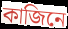
কাজিনে